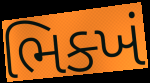
ભિક્ખં